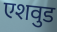
एशवुड